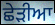
ਛੇੜੀਆ